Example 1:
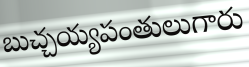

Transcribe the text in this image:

బుచ్చయ్యపంతులుగారు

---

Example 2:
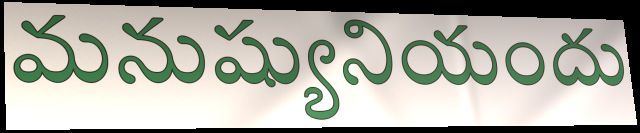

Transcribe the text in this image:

మనుష్యునియందు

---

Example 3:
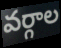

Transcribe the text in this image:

వర్గాల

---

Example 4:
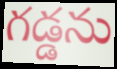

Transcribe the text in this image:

గడ్డను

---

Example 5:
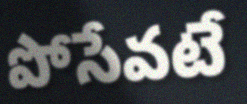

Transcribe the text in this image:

పోసేవటే